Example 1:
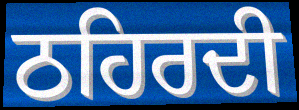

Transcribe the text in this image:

ਠਹਿਰਦੀ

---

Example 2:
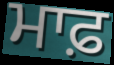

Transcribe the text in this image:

ਮਾਫ਼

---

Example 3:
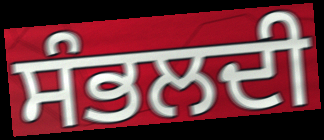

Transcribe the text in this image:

ਸੰਭਲਦੀ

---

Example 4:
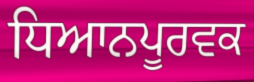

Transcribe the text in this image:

ਧਿਆਨਪੂਰਵਕ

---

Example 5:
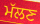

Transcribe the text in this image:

ਮੱਲਣ